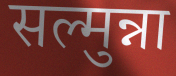
सल्मुन्ना